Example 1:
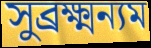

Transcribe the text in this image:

সুব্রক্ষ্মন্যম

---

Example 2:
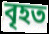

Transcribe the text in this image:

বৃহত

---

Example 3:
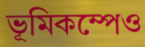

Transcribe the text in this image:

ভূমিকম্পেও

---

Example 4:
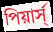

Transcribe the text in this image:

পিয়ার্স্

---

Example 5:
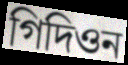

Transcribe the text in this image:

গিদিওন